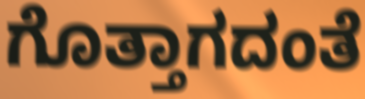
ಗೊತ್ತಾಗದಂತೆ